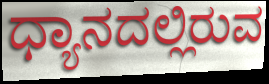
ಧ್ಯಾನದಲ್ಲಿರುವ